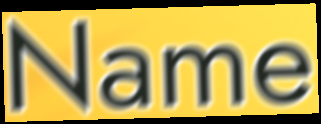
Name